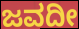
ಜವದೀ